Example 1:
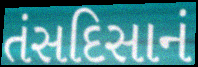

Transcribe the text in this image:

તંસદિસાનં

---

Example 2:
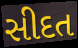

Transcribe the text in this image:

સીદત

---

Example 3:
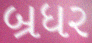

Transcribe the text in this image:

બ્રધર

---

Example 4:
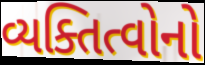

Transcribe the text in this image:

વ્યક્તિત્વોનો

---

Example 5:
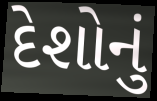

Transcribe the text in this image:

દેશોનું